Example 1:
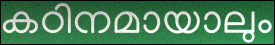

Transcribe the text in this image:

കഠിനമായാലും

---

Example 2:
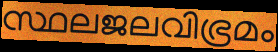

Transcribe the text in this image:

സ്ഥലജലവിഭ്രമം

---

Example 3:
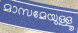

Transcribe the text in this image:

മാസമേയുള്ളൂ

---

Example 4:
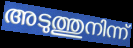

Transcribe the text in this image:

അടുത്തുനിന്ന്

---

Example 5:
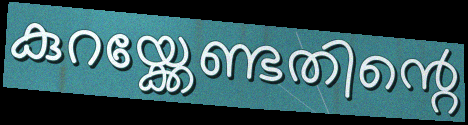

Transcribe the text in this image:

കുറയ്ക്കേണ്ടതിന്റെ